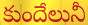
కుందేలునీ